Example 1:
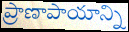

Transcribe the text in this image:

ప్రాణాపాయాన్ని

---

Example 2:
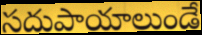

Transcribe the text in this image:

సదుపాయాలుండే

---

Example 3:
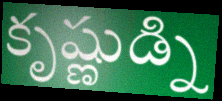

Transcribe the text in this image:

కృష్ణుడ్ని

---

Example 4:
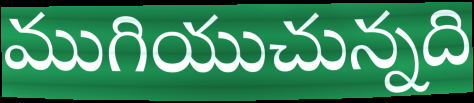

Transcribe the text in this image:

ముగియుచున్నది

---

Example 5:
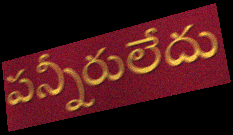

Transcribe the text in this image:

పన్నీరులేదు